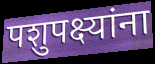
पशुपक्ष्यांना